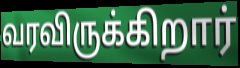
வரவிருக்கிறார்